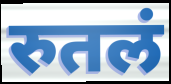
रुतलं